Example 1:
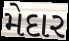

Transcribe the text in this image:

મેદાર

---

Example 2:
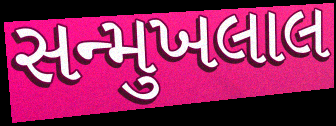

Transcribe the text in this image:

સન્મુખલાલ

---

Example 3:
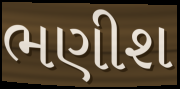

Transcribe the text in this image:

ભણીશ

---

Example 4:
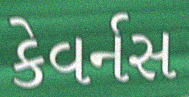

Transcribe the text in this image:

કેવર્નસ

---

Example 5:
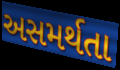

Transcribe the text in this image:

અસમર્થતા